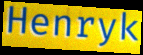
Henryk